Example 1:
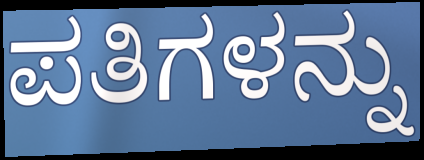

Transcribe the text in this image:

ಪತಿಗಳನ್ನು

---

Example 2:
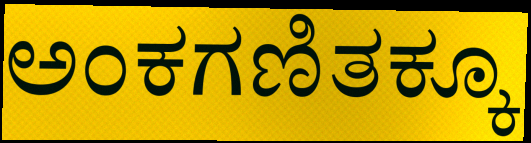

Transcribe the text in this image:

ಅಂಕಗಣಿತಕ್ಕೂ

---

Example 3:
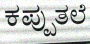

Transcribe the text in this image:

ಕಪ್ಪುತಲೆ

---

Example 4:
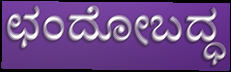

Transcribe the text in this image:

ಛಂದೋಬದ್ಧ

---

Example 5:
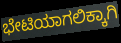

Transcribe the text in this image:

ಭೇಟಿಯಾಗಲಿಕ್ಕಾಗಿ